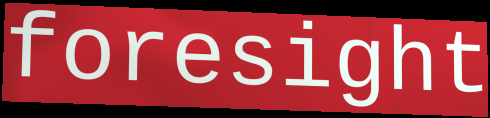
foresight